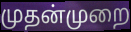
முதன்முறை